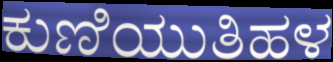
ಕುಣಿಯುತಿಹಳ